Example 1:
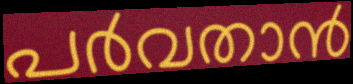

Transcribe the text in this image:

പർവതാൻ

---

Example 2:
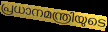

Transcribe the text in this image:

പ്രധാനമന്ത്രിയുടെ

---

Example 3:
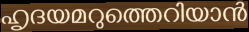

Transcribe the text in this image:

ഹൃദയമറുത്തെറിയാൻ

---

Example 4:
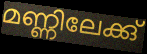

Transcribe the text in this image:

മണ്ണിലേക്കു്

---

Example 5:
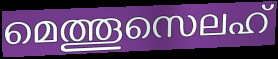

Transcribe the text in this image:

മെത്തൂസെലഹ്